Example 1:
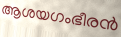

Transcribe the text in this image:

ആശയഗംഭീരൻ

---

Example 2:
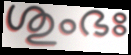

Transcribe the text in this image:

ശുംഭഃ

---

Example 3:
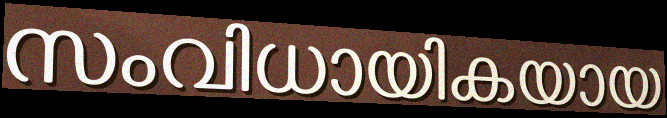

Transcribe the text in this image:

സംവിധായികയായ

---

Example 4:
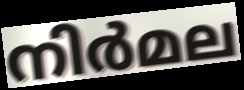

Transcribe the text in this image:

നിർമല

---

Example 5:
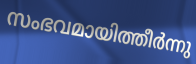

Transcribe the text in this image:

സംഭവമായിത്തീർന്നു